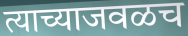
त्याच्याजवळच